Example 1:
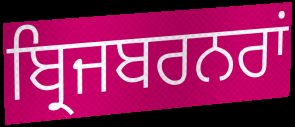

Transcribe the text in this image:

ਬ੍ਰਿਜਬਰਨਰਾਂ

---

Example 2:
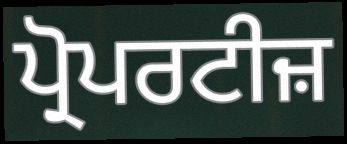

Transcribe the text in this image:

ਪ੍ਰੋਪਰਟੀਜ਼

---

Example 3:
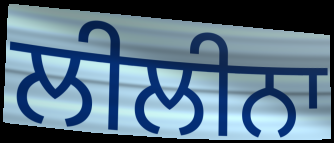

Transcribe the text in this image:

ਲੀਲੀਨਾ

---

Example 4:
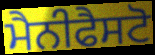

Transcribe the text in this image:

ਮੈਨੀਫੈਸਟੋ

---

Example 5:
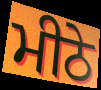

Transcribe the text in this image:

ਮੀਠੇ